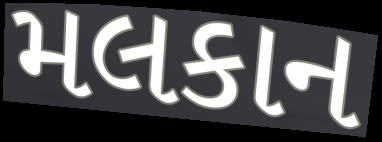
મલકાન